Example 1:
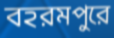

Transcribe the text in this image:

বহরমপুরে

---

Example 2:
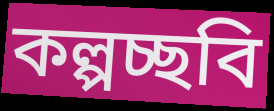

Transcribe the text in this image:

কল্পচ্ছবি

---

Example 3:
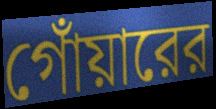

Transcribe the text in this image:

গোঁয়ারের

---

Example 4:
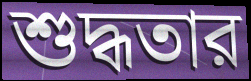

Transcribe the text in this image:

শুদ্ধতার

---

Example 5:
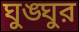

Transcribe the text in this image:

ঘুঙ্ঘুর